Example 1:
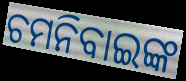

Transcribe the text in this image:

ଚମନିବାଇଙ୍କ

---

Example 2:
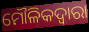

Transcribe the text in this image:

ମୌଳିକଦ୍ଵାରା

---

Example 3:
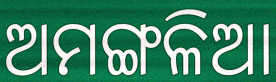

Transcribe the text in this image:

ଅମଙ୍ଗଳିଆ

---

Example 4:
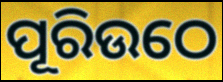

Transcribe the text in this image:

ପୂରିଉଠେ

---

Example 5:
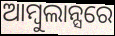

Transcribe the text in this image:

ଆମ୍ବୁଲାନ୍ସରେ